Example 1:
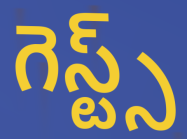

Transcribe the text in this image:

గెస్ట్స్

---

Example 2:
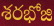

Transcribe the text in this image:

శరభోజి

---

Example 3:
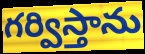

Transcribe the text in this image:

గర్విస్తాను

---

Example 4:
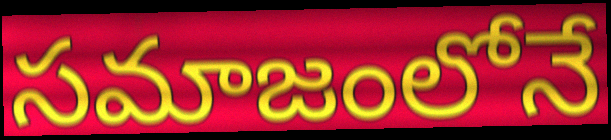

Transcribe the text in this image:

సమాజంలోనే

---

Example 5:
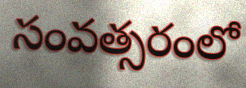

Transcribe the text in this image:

సంవత్సరంలో